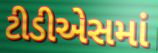
ટીડીએસમાં